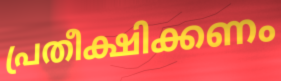
പ്രതീക്ഷിക്കണം